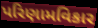
પરિણામવિકાર